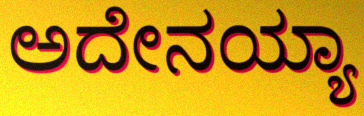
ಅದೇನಯ್ಯಾ